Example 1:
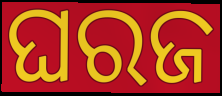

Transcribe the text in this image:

ଘରଜ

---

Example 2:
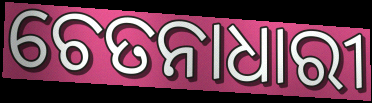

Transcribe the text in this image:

ଚେତନାଧାରୀ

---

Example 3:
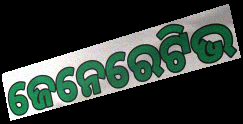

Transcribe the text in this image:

ଜେନେରେଟିଭ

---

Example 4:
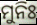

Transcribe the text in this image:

ମୁନିଃ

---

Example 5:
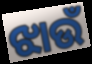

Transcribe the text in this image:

ଝାଉଁ